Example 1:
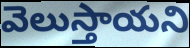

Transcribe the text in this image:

వెలుస్తాయని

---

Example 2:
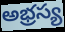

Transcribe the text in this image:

అభ్రస్య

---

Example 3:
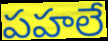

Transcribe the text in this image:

పహలే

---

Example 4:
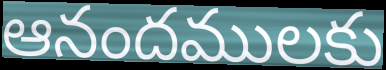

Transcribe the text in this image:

ఆనందములకు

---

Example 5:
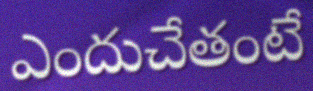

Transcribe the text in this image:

ఎందుచేతంటే